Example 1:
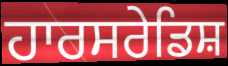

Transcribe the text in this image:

ਹਾਰਸਰੇਡਿਸ਼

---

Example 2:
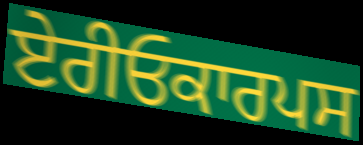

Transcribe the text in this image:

ਏਰੀਓਕਾਰਪਸ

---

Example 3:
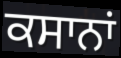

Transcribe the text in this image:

ਕਸਾਨਾਂ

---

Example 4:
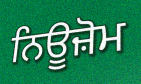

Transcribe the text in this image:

ਨਿਊਜ਼ੋਮ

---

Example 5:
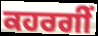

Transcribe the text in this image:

ਕਹਰਗੀਂ